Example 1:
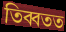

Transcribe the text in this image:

তিব্বতত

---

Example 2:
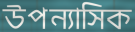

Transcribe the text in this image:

উপন্যাসিক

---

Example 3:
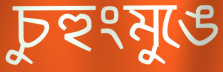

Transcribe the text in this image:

চুহুংমুঙে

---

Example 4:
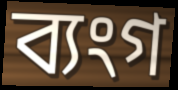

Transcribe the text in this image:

ব্যংগ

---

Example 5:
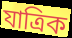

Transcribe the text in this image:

যাত্ৰিক